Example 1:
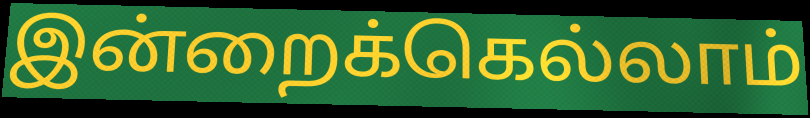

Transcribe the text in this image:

இன்றைக்கெல்லாம்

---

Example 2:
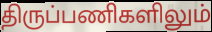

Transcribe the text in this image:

திருப்பணிகளிலும்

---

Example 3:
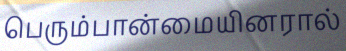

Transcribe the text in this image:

பெரும்பான்மையினரால்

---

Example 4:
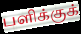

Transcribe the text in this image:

பளிக்குக்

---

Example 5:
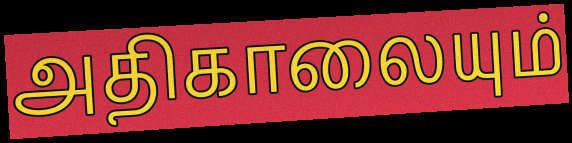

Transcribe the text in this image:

அதிகாலையும்